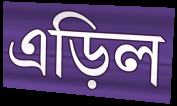
এড়িল